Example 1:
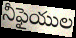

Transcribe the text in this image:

నీఫైయుల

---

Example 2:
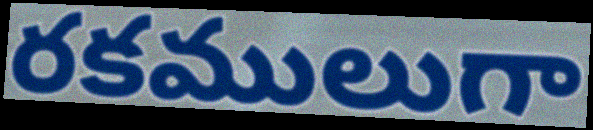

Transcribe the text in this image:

రకములుగా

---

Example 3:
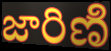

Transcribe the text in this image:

జారిణి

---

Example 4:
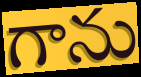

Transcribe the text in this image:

గాను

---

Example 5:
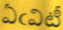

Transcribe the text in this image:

ఏఁవిటీ